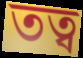
তত্ব